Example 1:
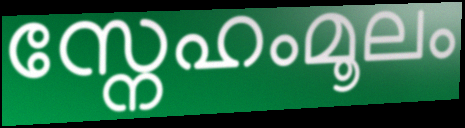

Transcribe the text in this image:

സ്നേഹംമൂലം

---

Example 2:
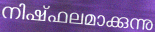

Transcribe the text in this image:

നിഷ്ഫലമാക്കുന്നു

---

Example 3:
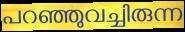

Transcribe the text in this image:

പറഞ്ഞുവച്ചിരുന്ന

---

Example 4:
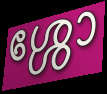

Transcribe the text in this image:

ശ്ശോ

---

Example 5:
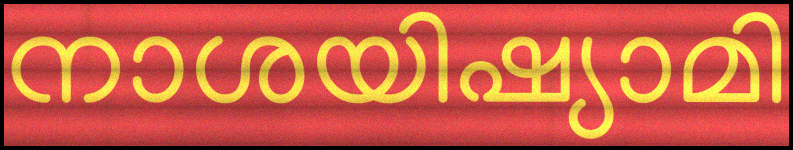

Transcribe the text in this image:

നാശയിഷ്യാമി